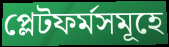
প্লেটফৰ্মসমূহে